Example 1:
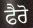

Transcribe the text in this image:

ਫੈਰੋ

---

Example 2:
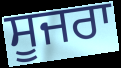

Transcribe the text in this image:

ਸੂਜਰਾ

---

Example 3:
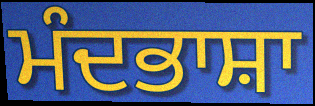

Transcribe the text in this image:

ਮੰਦਭਾਸ਼ਾ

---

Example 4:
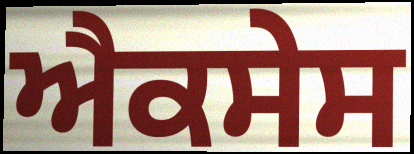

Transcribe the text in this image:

ਐਕਸੇਸ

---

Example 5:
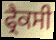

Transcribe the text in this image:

ਫ੍ਰੈਕਸੀ